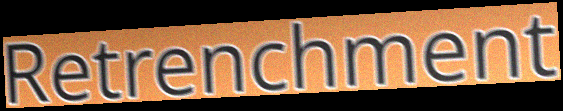
Retrenchment